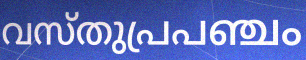
വസ്തുപ്രപഞ്ചം